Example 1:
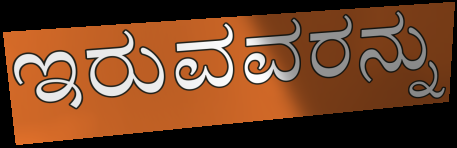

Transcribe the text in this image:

ಇರುವವರನ್ನು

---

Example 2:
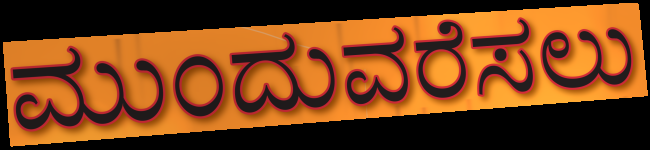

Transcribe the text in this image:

ಮುಂದುವರೆಸಲು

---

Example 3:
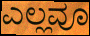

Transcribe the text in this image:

ಎಲ್ಲವೂ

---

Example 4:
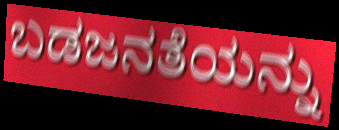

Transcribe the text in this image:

ಬಡಜನತೆಯನ್ನು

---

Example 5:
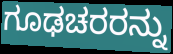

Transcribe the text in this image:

ಗೂಢಚರರನ್ನು